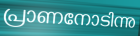
പ്രാണനോടിന്നു